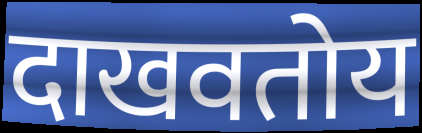
दाखवतोय